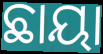
ଛାୟା